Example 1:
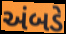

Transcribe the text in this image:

અંબડે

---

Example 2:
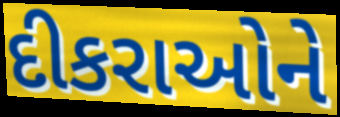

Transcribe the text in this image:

દીકરાઓને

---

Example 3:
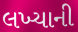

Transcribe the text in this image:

લખ્યાની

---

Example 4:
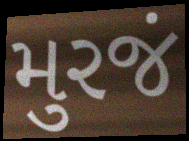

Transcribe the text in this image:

મુરજં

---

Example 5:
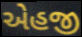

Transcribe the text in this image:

એહજી